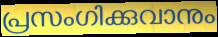
പ്രസംഗിക്കുവാനും